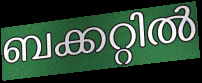
ബക്കറ്റിൽ